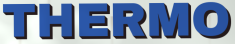
THERMO